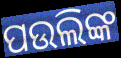
ପଉଲିଙ୍କ